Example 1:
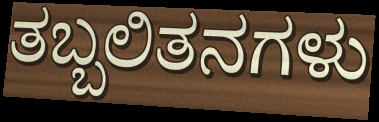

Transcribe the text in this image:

ತಬ್ಬಲಿತನಗಳು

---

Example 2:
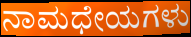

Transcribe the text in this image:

ನಾಮಧೇಯಗಳು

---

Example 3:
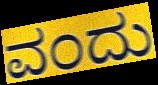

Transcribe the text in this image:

ವಂದು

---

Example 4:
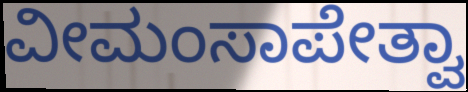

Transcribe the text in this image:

ವೀಮಂಸಾಪೇತ್ವಾ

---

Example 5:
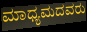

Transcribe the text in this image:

ಮಾಧ್ಯಮದವರು